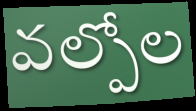
వల్పోల